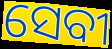
ସେବୀ